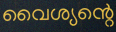
വൈശ്യന്റെ